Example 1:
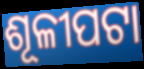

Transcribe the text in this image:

ଶୂଳୀପଟା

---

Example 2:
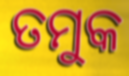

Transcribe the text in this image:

ତମୁକ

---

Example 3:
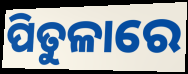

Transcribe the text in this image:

ପିତୁଳାରେ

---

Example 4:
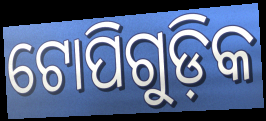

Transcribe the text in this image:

ଟୋପିଗୁଡ଼ିକ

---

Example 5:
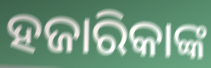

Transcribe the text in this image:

ହଜାରିକାଙ୍କ